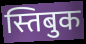
स्तिबुक